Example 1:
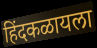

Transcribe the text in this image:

हिंदकळायला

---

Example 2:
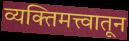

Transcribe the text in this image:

व्यक्तिमत्त्वातून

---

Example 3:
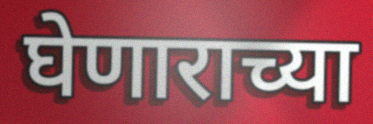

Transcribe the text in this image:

घेणाराच्या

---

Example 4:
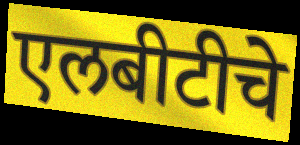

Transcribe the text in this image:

एलबीटीचे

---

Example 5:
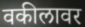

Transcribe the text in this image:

वकीलावर